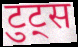
टुट्स